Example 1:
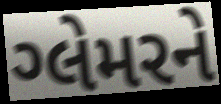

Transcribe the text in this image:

ગ્લેમરને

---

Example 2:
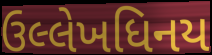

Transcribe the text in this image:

ઉલ્લેખધિનય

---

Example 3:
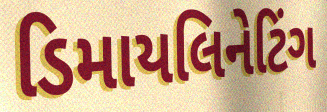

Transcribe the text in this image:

ડિમાયલિનેટિંગ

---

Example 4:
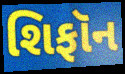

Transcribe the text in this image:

શિફૉન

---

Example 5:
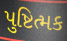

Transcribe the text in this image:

પુષ્ટિત્મક